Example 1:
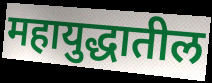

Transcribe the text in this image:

महायुद्धातील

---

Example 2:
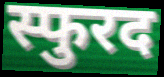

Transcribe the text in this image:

स्फुरद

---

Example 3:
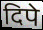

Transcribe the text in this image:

दिपे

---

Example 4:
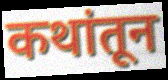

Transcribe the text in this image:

कथांतून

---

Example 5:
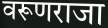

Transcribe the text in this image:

वरूणराजा